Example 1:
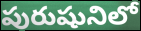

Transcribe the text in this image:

పురుషునిలో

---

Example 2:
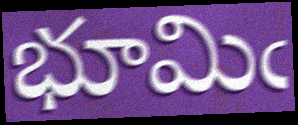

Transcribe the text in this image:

భూమిఁ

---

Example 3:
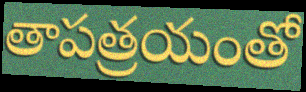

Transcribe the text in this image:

తాపత్రయంతో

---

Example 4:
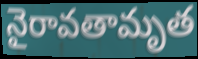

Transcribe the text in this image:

నైరావతామృత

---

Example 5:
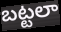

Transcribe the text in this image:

బట్టలా